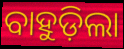
ବାହୁଡ଼ିଲା